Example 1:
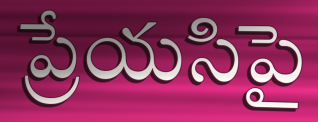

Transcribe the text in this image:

ప్రేయసిపై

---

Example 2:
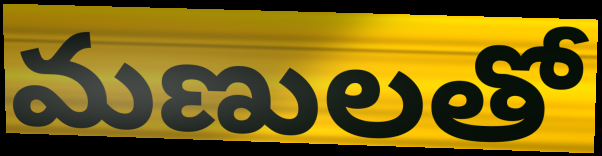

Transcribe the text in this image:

మణులతో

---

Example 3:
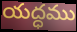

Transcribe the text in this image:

యద్ధము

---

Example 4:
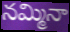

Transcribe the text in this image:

నమ్మినా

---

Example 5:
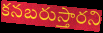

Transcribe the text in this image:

కనబరుస్తారని